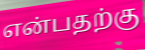
என்பதற்கு